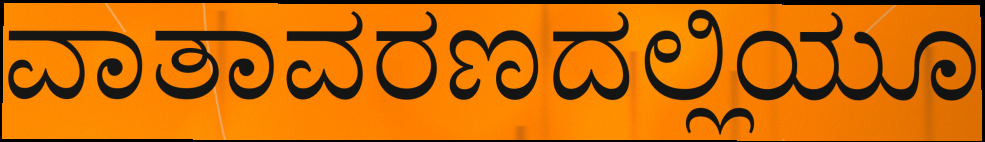
ವಾತಾವರಣದಲ್ಲಿಯೂ